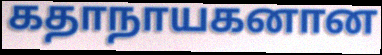
கதாநாயகனான